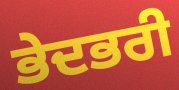
ਭੇਦਭਰੀ